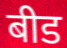
बीड